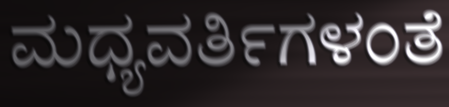
ಮಧ್ಯವರ್ತಿಗಳಂತೆ